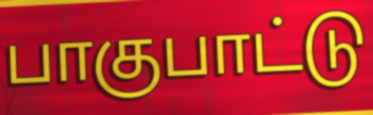
பாகுபாட்டு